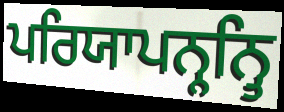
ਪਰਿਯਾਪਨ੍ਨਨ੍ਤਿ